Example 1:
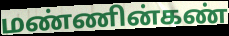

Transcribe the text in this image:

மண்ணின்கண்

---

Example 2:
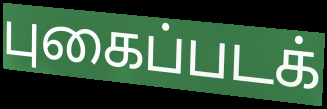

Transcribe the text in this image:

புகைப்படக்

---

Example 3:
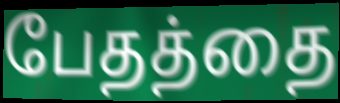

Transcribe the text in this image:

பேதத்தை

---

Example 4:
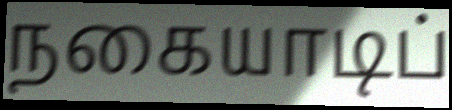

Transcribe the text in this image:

நகையாடிப்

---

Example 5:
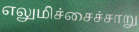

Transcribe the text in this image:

எலுமிச்சைச்சாறு